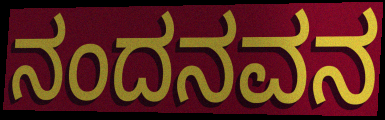
ನಂದನವನ